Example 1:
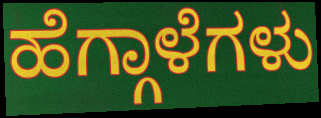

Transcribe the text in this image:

ಹೆಗ್ಗಾಳೆಗಳು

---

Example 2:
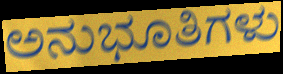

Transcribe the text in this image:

ಅನುಭೂತಿಗಳು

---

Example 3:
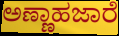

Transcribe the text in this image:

ಅಣ್ಣಾಹಜಾರೆ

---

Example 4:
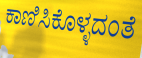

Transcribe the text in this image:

ಕಾಣಿಸಿಕೊಳ್ಳದಂತೆ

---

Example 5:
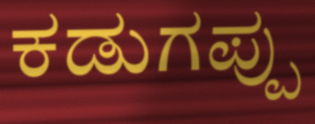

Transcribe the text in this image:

ಕಡುಗಪ್ಪು